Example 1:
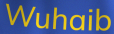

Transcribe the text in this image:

Wuhaib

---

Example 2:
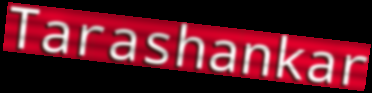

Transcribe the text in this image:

Tarashankar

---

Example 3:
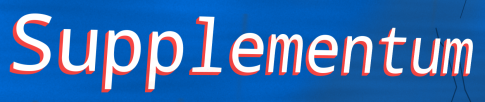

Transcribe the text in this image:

Supplementum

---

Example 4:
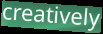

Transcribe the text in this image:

creatively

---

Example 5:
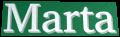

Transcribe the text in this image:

Marta